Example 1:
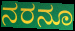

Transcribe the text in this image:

ನರನೂ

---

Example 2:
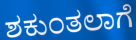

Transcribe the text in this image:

ಶಕುಂತಲಾಗೆ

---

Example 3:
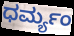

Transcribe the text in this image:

ಧರ್ಮ್ಯಂ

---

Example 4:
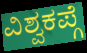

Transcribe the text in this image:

ವಿಶ್ವಕಪ್ಗೆ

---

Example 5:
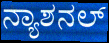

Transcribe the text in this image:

ನ್ಯಾಶನಲ್